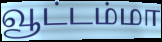
வூட்டம்மா